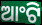
ଆଂଟି